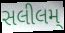
સલીલમ્